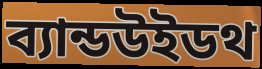
ব্যান্ডউইডথ